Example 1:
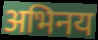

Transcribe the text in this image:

अभिनय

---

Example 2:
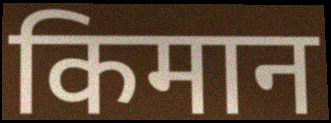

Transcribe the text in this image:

किमान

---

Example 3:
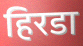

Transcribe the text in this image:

हिरडा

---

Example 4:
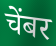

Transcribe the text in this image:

चेंबर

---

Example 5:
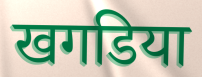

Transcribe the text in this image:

खगडिया